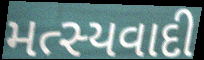
મત્સ્યવાદી